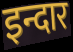
इन्दार